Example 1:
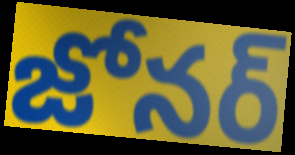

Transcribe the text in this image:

జోనర్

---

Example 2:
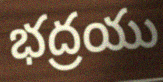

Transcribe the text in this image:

భద్రయు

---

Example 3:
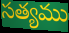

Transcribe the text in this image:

సత్యము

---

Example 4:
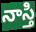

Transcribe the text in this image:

నాస్తి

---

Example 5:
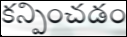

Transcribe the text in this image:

కన్పించడం